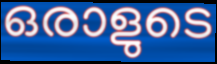
ഒരാളുടെ